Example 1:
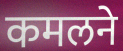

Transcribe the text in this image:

कमलने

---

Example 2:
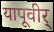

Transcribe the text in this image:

यापूवीर्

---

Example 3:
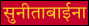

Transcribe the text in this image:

सुनीताबाईना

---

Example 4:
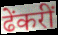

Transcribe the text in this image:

ढेंकरीं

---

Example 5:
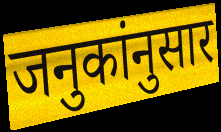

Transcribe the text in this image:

जनुकांनुसार